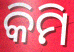
କିମି